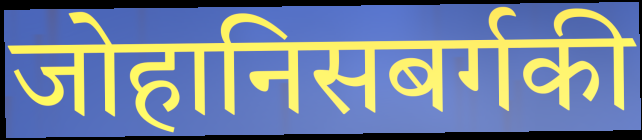
जोहानिसबर्गकी